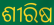
ଶୀରିଷ